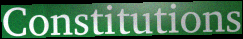
Constitutions